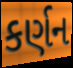
કર્ણન